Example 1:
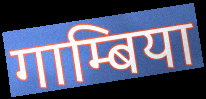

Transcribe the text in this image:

गाम्बिया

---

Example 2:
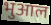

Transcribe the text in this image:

भुआल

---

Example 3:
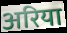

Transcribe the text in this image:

अरिया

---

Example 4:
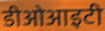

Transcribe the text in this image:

डीओआइटी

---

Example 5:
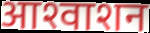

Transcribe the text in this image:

आश्वाशन